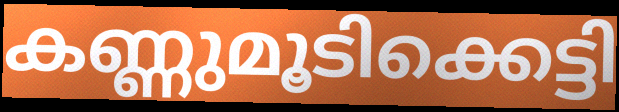
കണ്ണുമൂടിക്കെട്ടി